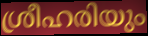
ശ്രീഹരിയും